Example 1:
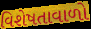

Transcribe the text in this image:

વિશેષતાવાળો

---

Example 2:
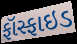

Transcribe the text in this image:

ફૉસ્ફાઇડ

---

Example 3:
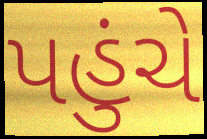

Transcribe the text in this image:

પહુંચે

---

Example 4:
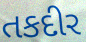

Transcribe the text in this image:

તકદીર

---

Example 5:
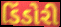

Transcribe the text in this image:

ડિંડોરી